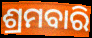
ଶ୍ରମବାରି